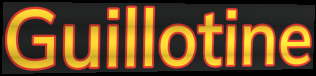
Guillotine